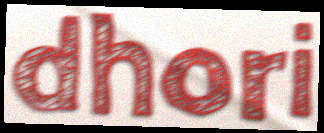
dhori